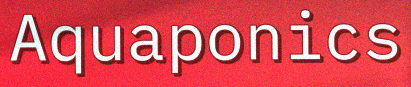
Aquaponics